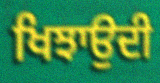
ਖਿਝਾਉਦੀ